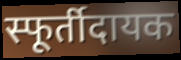
स्फूर्तीदायक